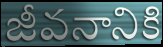
జీవనానికి